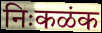
निःकळंक